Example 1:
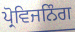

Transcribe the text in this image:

ਪ੍ਰੋਵਿਜਨਿੰਗ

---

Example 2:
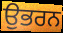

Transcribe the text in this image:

ਉਭਰਨ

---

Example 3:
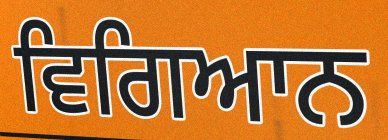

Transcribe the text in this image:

ਵਿਗਿਆਨ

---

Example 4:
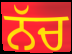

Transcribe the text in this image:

ਨੱਚ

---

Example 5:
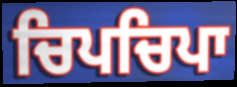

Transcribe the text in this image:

ਚਿਪਚਿਪਾ